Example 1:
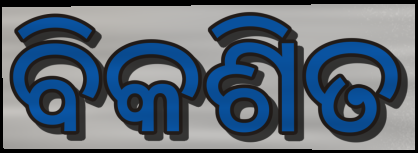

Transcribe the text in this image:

ବିକଶିତ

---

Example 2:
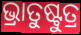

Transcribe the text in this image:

ଭ୍ରାତୁଷ୍ଟୁତ୍ର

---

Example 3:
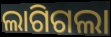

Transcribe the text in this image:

ଲାଗିଗଲା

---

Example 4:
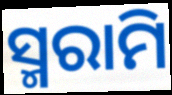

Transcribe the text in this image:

ସ୍ମରାମି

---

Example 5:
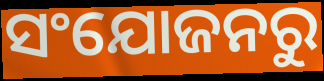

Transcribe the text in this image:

ସଂଯୋଜନରୁ